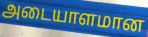
அடையாளமான